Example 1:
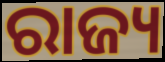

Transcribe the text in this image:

ରାଜ୍ୟ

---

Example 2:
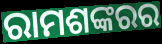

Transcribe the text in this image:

ରାମଶଙ୍କରର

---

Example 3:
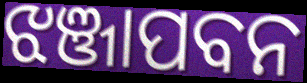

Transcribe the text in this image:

ଝଞ୍ଜାପବନ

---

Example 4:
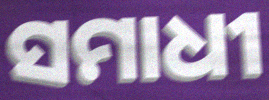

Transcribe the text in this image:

ସମାଧୀ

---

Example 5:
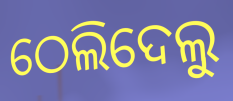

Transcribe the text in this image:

ଠେଲିଦେଲୁ